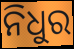
ନିଧୁର